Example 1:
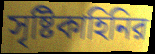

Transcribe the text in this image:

সৃষ্টিকাহিনির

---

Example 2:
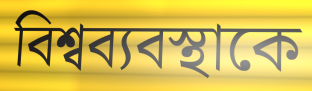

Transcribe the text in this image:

বিশ্বব্যবস্থাকে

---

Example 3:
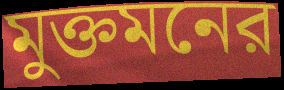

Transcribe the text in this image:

মুক্তমনের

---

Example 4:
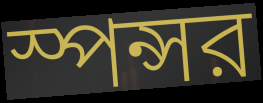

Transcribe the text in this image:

স্পন্সর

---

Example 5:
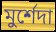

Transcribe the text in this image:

মুর্শেদা